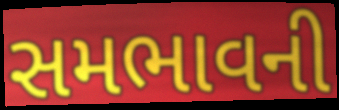
સમભાવની